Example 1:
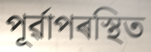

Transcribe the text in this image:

পূৰ্ৱাপৰস্থিত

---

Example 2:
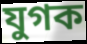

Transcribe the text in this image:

যুগক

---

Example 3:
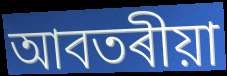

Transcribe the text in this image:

আবতৰীয়া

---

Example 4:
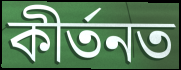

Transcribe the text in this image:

কীৰ্তনত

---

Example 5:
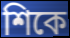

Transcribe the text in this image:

শিকে